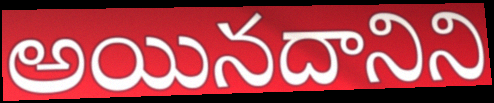
అయినదానిని